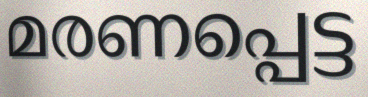
മരണപ്പെട്ട